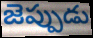
జెప్పుడు